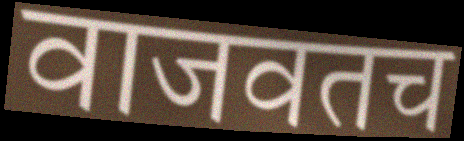
वाजवतच